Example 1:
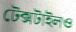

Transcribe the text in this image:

টেক্সটাইলও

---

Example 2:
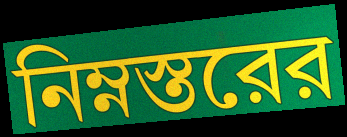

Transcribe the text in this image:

নিম্নস্তরের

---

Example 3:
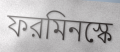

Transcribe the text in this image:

ফরমিনস্কে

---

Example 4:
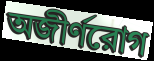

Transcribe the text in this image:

অজীর্ণরোগ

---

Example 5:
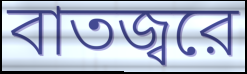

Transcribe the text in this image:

বাতজ্বরে